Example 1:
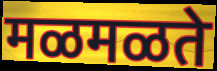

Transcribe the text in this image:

मळमळते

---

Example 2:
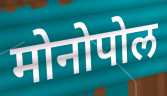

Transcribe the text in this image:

मोनोपोल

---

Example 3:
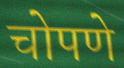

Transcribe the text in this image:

चोपणे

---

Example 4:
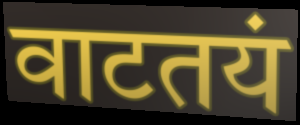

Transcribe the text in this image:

वाटतयं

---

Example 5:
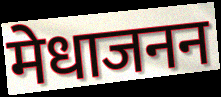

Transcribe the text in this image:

मेधाजनन